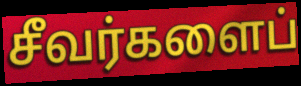
சீவர்களைப்